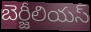
బెర్జీలియస్